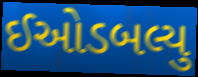
ઈઓડબલ્યુ